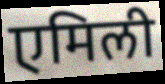
एमिली